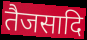
तैजसादि